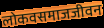
लोकवसमाजजीवन